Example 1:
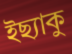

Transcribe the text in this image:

ইছ্যাকু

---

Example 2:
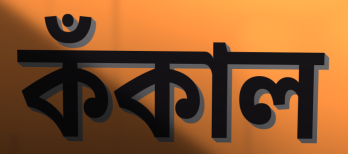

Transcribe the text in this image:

কঁকাল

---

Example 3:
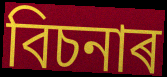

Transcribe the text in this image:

বিচনাৰ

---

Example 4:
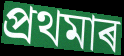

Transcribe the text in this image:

প্ৰথমাৰ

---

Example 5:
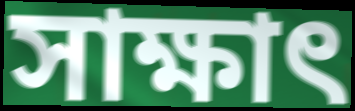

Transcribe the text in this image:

সাক্ষাৎ